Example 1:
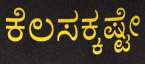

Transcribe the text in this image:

ಕೆಲಸಕ್ಕಷ್ಟೇ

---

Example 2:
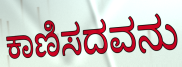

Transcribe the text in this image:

ಕಾಣಿಸದವನು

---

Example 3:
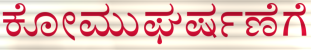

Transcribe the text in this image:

ಕೋಮುಘರ್ಷಣೆಗೆ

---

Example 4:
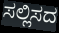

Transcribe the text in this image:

ಸಲ್ಲಿಸದ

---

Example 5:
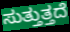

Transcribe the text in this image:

ಸುತ್ತುತ್ತದೆ